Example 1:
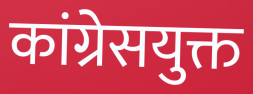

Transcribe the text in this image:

कांग्रेसयुक्त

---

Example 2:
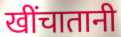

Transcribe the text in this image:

खींचातानी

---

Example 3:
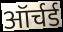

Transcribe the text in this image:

ऑर्चर्ड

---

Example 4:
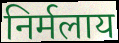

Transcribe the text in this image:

निर्मलाय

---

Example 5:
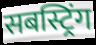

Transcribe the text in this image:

सबस्ट्रिंग